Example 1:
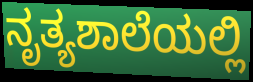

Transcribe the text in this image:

ನೃತ್ಯಶಾಲೆಯಲ್ಲಿ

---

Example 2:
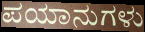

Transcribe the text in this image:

ಪಯಾನುಗಳು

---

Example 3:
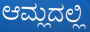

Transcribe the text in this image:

ಆಮ್ಲದಲ್ಲಿ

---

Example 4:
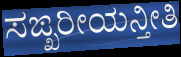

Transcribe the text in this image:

ಸಙ್ಖರೀಯನ್ತೀತಿ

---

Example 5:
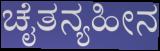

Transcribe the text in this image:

ಚೈತನ್ಯಹೀನ